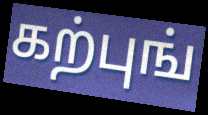
கற்புங்